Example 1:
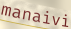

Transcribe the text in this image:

manaivi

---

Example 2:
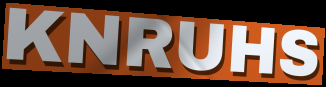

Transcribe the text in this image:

KNRUHS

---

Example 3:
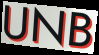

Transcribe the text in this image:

UNB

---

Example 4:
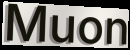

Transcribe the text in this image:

Muon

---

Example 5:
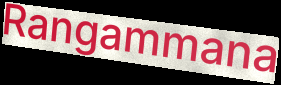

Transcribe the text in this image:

Rangammana